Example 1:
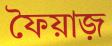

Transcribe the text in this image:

ফৈয়াজ়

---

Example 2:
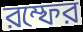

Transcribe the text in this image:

রম্ফের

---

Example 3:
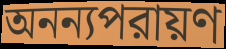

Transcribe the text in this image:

অনন্যপরায়ণ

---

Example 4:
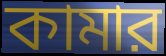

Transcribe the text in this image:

কামার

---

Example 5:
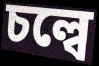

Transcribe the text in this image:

চল্বে